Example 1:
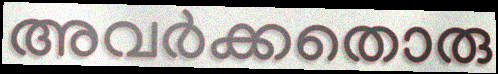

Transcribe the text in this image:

അവർക്കതൊരു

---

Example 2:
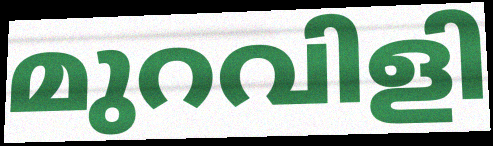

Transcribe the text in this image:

മുറവിളി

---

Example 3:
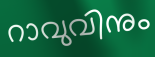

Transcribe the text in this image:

റാവുവിനും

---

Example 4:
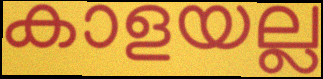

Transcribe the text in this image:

കാളയല്ല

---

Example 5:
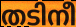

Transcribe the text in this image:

തടിനീ